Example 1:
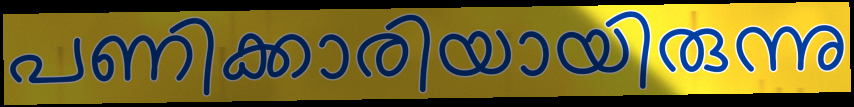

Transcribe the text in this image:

പണിക്കാരിയായിരുന്നു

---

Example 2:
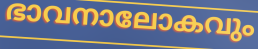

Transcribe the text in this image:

ഭാവനാലോകവും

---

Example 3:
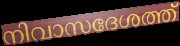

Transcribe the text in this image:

നിവാസദേശത്ത്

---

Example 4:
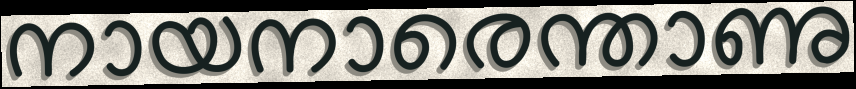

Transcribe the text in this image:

നായനാരെന്താണു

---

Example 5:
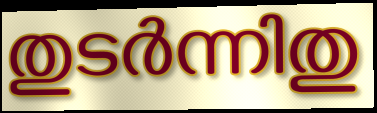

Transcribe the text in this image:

തുടർന്നിതു